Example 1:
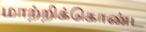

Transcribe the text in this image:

மாற்றிக்கொண்ட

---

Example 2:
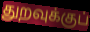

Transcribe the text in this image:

துறவுக்குப்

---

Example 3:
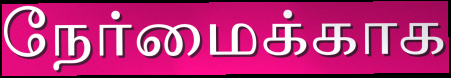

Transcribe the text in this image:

நேர்மைக்காக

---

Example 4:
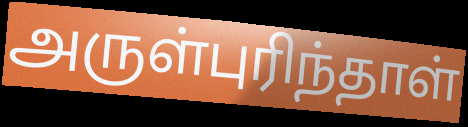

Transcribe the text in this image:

அருள்புரிந்தாள்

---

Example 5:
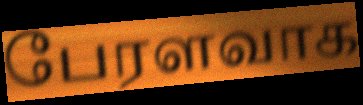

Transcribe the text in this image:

பேரளவாக